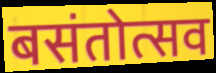
बसंतोत्सव